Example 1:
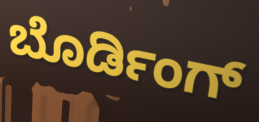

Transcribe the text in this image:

ಬೊರ್ಡಿಂಗ್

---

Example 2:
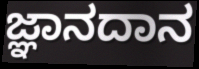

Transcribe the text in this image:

ಜ್ಞಾನದಾನ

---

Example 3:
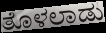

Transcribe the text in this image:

ತೊಳಲಾಡು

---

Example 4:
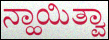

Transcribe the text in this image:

ನ್ಹಾಯಿತ್ವಾ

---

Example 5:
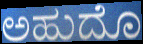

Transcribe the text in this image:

ಅಹುದೊ